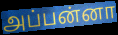
அப்பன்னா